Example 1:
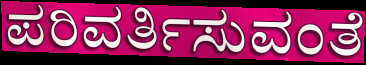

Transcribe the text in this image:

ಪರಿವರ್ತಿಸುವಂತೆ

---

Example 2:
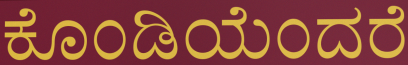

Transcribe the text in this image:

ಕೊಂಡಿಯೆಂದರೆ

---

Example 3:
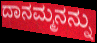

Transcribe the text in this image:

ದಾನಮ್ಮನನ್ನು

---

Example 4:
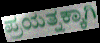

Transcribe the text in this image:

ಪ್ರಯತ್ನಕ್ಕಾಗಿ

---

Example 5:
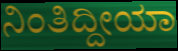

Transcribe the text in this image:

ನಿಂತಿದ್ದೀಯಾ